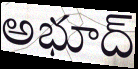
అభూద్